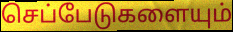
செப்பேடுகளையும்